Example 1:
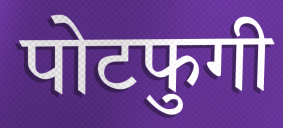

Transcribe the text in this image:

पोटफुगी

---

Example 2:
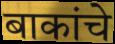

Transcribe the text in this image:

बाकांचे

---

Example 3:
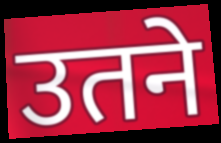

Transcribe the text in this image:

उतने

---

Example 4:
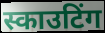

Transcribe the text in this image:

स्काउटिंग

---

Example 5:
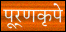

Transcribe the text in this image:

पूर्णकृपे